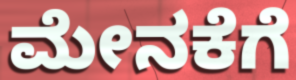
ಮೇನಕೆಗೆ